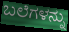
ಬಲೆಗಳನ್ನು